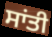
ਸਾਂਤੀ